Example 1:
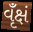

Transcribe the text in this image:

વૃઁક્ષં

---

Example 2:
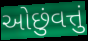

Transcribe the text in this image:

ઓછુંવત્તું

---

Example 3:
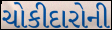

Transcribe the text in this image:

ચોકીદારોની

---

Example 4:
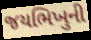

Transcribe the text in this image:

જયભિખુની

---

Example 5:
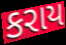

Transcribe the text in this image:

કરાય